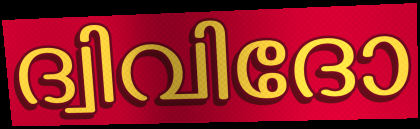
ദ്വിവിദോ